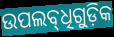
ଉପଲବ୍‌ଧିଗୁଡ଼ିକ